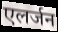
एलर्जन